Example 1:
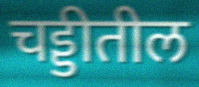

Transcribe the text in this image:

चड्डीतील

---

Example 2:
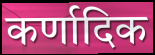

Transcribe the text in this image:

कर्णादिक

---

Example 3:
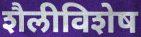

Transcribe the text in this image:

शैलीविशेष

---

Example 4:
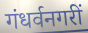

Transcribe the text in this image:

गंधर्वनगरीं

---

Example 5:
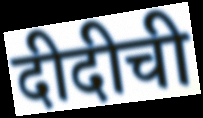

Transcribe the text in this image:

दीदीची